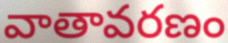
వాతావరణం